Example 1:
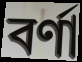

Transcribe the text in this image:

বর্ণা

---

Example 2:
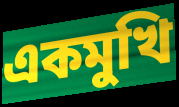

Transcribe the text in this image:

একমুখি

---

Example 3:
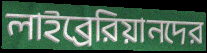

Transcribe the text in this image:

লাইব্রেরিয়ানদের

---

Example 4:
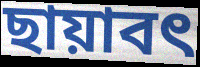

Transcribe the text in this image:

ছায়াবৎ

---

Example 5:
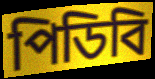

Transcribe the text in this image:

পিডিবি